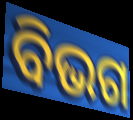
ବିଭଗ